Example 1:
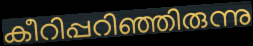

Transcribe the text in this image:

കീറിപ്പറിഞ്ഞിരുന്നു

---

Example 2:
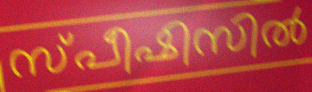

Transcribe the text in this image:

സ്പീഷിസിൽ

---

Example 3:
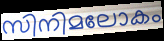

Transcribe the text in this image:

സിനിമലോകം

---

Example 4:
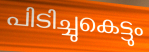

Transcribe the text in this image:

പിടിച്ചുകെട്ടും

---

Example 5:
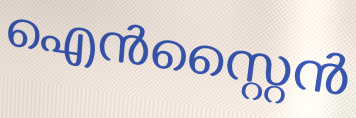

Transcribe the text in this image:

ഐൻസ്റ്റൈൻ